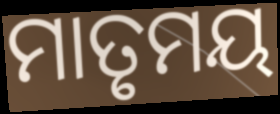
ମାତୃମୟ